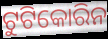
ଟୁଟିକୋରିନ